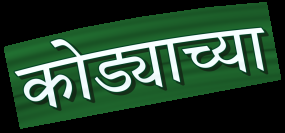
कोड्याच्या